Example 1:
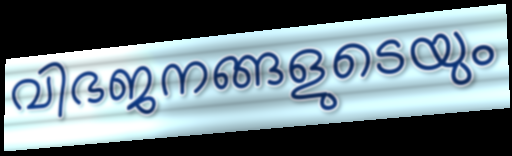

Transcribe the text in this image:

വിഭജനങ്ങളുടെയും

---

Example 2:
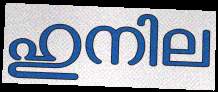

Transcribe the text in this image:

ഹുനില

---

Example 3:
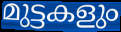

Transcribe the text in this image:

മുട്ടകളും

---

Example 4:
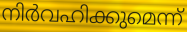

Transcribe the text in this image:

നിർവഹിക്കുമെന്ന്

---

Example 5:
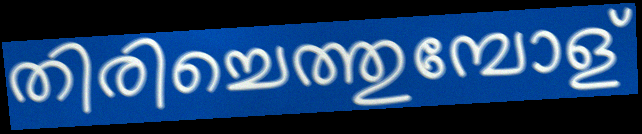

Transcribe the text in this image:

തിരിച്ചെത്തുമ്പോള്